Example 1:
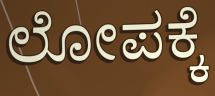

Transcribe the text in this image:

ಲೋಪಕ್ಕೆ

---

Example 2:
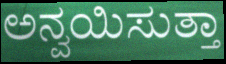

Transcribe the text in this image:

ಅನ್ವಯಿಸುತ್ತಾ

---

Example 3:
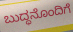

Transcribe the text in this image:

ಬುದ್ಧನೊಂದಿಗೆ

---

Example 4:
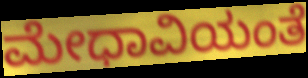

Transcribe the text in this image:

ಮೇಧಾವಿಯಂತೆ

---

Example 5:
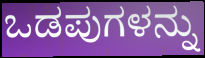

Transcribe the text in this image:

ಒಡಪುಗಳನ್ನು